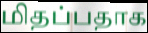
மிதப்பதாக